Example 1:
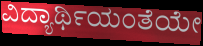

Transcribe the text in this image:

ವಿದ್ಯಾರ್ಥಿಯಂತೆಯೇ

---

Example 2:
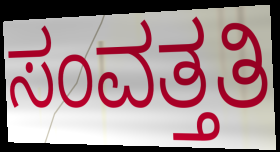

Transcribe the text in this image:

ಸಂವತ್ತತಿ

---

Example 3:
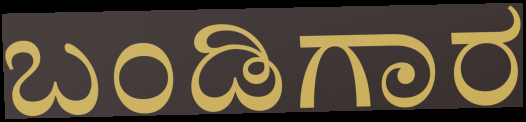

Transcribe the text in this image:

ಬಂಡಿಗಾರ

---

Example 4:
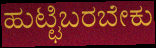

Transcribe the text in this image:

ಹುಟ್ಟಿಬರಬೇಕು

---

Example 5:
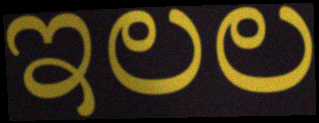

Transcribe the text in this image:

ಇಲಲ